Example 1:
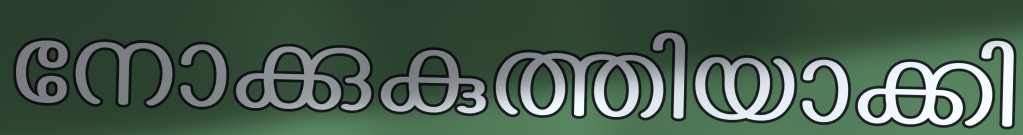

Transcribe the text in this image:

നോക്കുകുത്തിയാക്കി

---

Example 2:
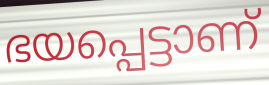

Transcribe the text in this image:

ഭയപ്പെട്ടാണ്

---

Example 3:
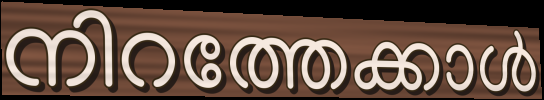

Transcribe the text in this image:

നിറത്തേക്കാൾ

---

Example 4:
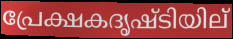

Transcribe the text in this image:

പ്രേക്ഷകദൃഷ്ടിയില്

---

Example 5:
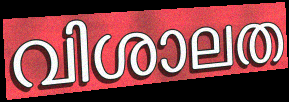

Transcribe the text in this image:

വിശാലത